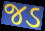
જડ